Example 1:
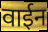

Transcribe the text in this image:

वाईन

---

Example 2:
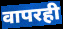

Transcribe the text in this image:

वापरही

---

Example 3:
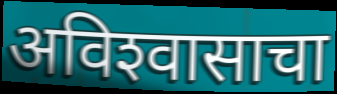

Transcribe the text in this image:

अविश्‍वासाचा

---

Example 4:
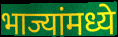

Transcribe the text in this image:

भाज्यांमध्ये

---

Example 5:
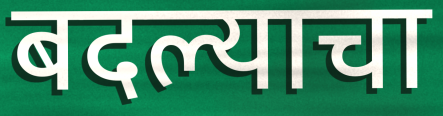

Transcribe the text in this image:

बदल्याचा